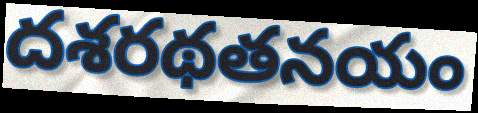
దశరథతనయం